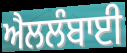
ਐਲਲੰਬਾਈ